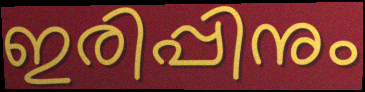
ഇരിപ്പിനും